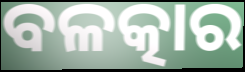
ବଳତ୍କାର